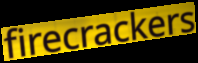
firecrackers